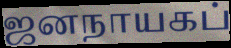
ஜனநாயகப்